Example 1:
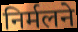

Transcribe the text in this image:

निर्मलने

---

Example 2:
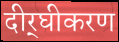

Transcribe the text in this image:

दीर्घीकरण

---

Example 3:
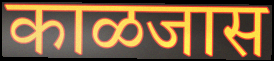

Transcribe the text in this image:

काळजास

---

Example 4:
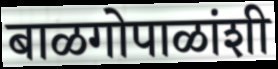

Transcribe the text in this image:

बाळगोपाळांशी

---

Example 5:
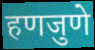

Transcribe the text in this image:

हणजुणे